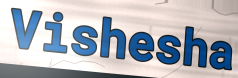
Vishesha